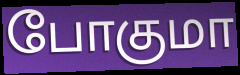
போகுமா